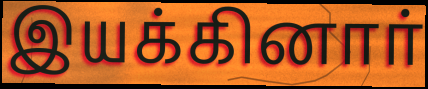
இயக்கினார்